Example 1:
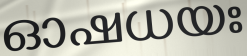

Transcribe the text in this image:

ഓഷധയഃ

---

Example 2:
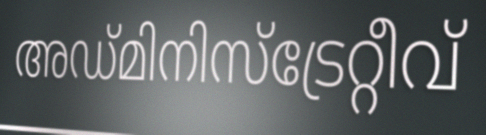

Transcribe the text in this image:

അഡ്മിനിസ്ട്രേറ്റീവ്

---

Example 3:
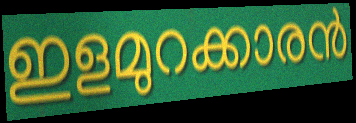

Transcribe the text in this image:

ഇളമുറക്കാരൻ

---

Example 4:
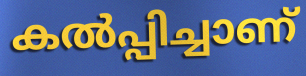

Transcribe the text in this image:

കൽപ്പിച്ചാണ്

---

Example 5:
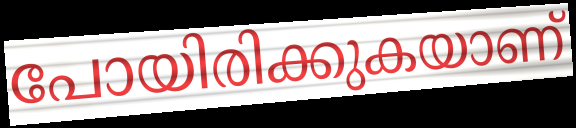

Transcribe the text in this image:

പോയിരിക്കുകയാണ്